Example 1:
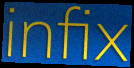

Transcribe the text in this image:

infix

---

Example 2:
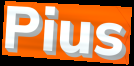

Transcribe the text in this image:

Pius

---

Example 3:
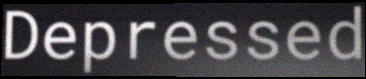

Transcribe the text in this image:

Depressed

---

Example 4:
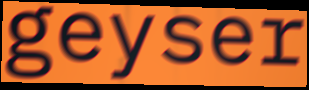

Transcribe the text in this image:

geyser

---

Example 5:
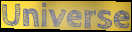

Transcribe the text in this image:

Universe